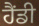
ਹੈਂਡੀ